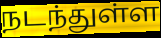
நடந்துள்ள